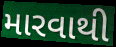
મારવાથી